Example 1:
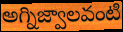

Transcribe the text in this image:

అగ్నిజ్వాలవంటి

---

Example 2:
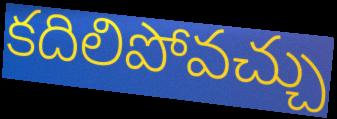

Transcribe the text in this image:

కదిలిపోవచ్చు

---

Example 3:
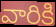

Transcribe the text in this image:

వారికి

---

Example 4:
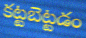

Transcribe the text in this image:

కట్టబెట్టడం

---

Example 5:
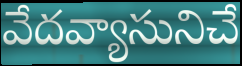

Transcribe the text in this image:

వేదవ్యాసునిచే